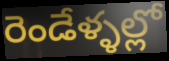
రెండేళ్ళల్లో